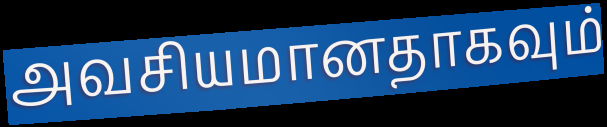
அவசியமானதாகவும்